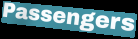
Passengers